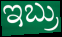
ಇಬ್ರು